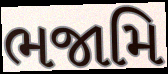
ભજામિ